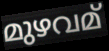
മുഴവമ്